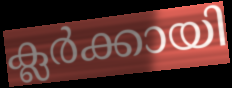
ക്ലർക്കായി